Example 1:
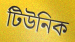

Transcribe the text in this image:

টিউনিক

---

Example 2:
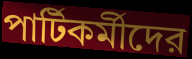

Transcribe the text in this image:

পার্টিকর্মীদের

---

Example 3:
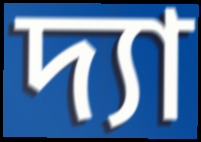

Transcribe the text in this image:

দ্যা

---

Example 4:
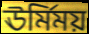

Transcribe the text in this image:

ঊর্মিময়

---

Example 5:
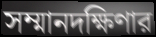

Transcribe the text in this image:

সম্মানদক্ষিণার